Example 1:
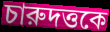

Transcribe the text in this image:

চারুদত্তকে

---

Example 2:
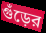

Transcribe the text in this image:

গুঁড়ের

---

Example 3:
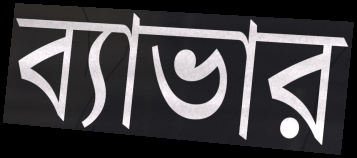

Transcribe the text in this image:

ব্যাভার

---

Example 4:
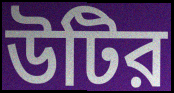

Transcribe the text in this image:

উটির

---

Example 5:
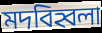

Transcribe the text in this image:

মদবিহ্বলা